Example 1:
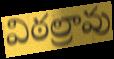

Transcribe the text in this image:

విఠల్రావు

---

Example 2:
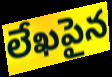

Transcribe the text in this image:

లేఖపైన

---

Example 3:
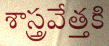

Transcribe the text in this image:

శాస్త్రవేత్తకి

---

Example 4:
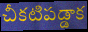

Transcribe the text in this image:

చీకటిపడ్డాక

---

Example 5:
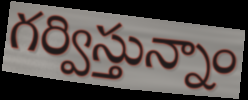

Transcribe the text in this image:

గర్విస్తున్నాం